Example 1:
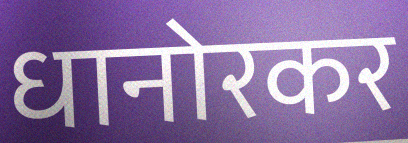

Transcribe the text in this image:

धानोरकर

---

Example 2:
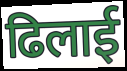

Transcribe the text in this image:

ढिलाई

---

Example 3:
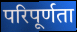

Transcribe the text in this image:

परिपूर्णता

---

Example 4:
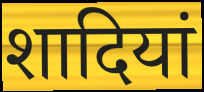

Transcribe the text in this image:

शादियां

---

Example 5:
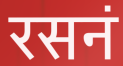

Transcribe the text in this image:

रसनं